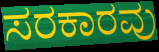
ಸರಕಾರವು